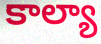
కాల్యా